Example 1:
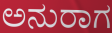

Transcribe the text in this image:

ಅನುರಾಗ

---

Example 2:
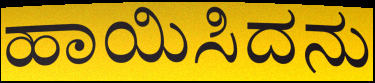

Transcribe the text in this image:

ಹಾಯಿಸಿದನು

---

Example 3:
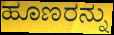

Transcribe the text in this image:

ಹೂಣರನ್ನು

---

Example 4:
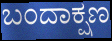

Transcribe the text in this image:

ಬಂದಾಕ್ಷಣ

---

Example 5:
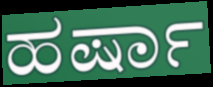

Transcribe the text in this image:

ಹರ್ಷಾ